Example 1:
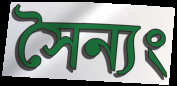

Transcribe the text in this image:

সৈন্যং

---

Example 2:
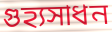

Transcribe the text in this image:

গুহ্যসাধন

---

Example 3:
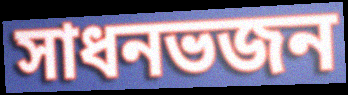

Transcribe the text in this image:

সাধনভজন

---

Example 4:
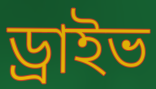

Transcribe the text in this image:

ড্রাইভ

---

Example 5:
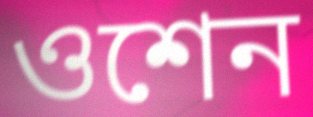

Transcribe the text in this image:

ওশেন